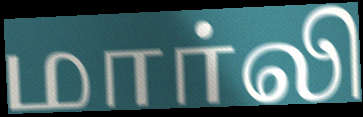
மார்லி